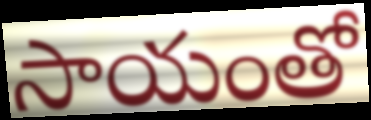
సాయంతో